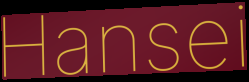
Hansei